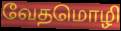
வேதமொழி